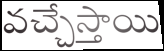
వచ్చేస్తాయి